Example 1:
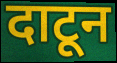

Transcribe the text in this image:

दाटून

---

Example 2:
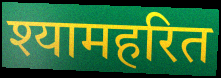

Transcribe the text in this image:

श्यामहरित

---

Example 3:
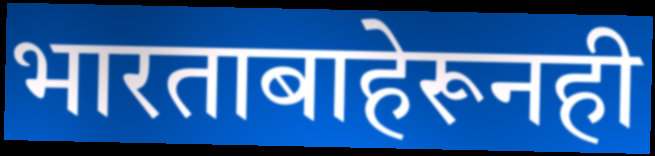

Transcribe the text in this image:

भारताबाहेरूनही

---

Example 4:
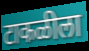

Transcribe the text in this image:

टाकळीला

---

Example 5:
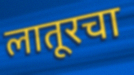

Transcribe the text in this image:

लातूरचा